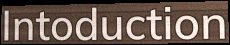
Intoduction